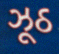
ઝૂઠ